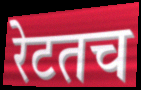
रेटतच